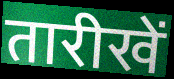
तारीखें